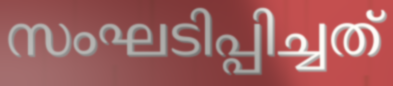
സംഘടിപ്പിച്ചത്